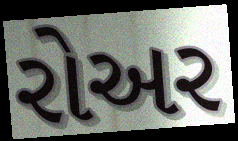
રોઅર